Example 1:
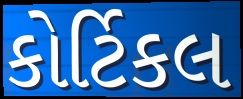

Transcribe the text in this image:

કોર્ટિકલ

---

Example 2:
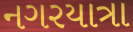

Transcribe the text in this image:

નગરયાત્રા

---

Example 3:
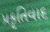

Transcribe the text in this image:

પ્રકૃતિવાદ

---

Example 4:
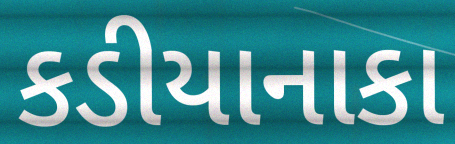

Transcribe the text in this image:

કડીયાનાકા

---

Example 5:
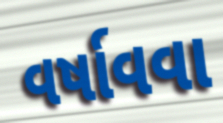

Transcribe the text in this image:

વર્ષાવવા